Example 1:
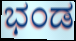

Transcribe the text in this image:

ಭಂಡ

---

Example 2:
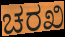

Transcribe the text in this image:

ಚರಖಿ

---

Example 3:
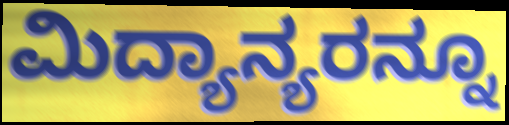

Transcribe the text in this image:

ಮಿದ್ಯಾನ್ಯರನ್ನೂ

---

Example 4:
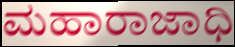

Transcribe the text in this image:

ಮಹಾರಾಜಾಧಿ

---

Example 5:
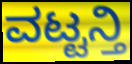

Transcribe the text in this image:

ವಟ್ಟನ್ತಿ